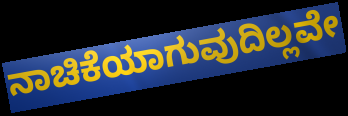
ನಾಚಿಕೆಯಾಗುವುದಿಲ್ಲವೇ